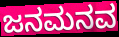
ಜನಮನವ